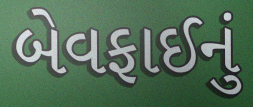
બેવફાઈનું